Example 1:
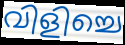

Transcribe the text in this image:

വിളിച്ചെ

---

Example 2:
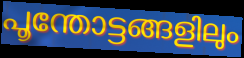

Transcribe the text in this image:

പൂന്തോട്ടങ്ങളിലും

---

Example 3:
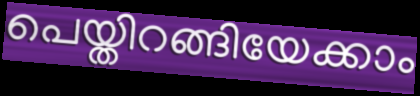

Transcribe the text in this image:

പെയ്തിറങ്ങിയേക്കാം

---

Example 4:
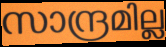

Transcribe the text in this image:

സാന്ദ്രമില്ല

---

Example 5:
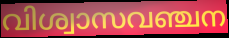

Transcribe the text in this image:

വിശ്വാസവഞ്ചന